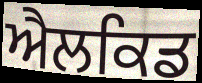
ਐਲਕਿਡ